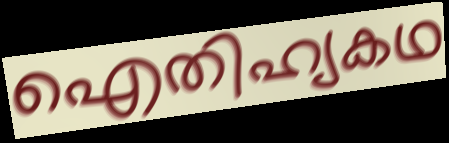
ഐതിഹ്യകഥ